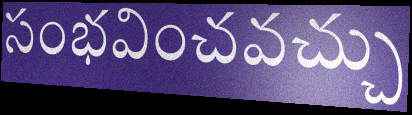
సంభవించవచ్చు